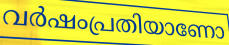
വർഷംപ്രതിയാണോ